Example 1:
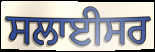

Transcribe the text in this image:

ਸਲਾਈਸਰ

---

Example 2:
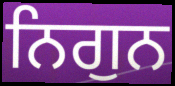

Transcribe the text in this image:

ਨਿਗੁਨ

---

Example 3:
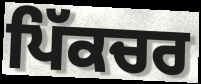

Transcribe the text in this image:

ਪਿੱਕਚਰ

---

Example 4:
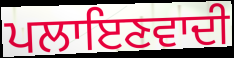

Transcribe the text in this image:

ਪਲਾਇਣਵਾਦੀ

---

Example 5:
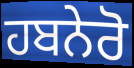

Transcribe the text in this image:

ਹਬਨੇਰੋ